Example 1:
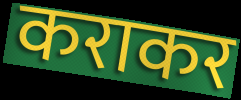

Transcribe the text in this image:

कराकर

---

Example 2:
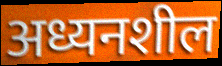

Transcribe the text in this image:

अध्यनशील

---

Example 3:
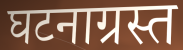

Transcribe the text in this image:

घटनाग्रस्त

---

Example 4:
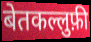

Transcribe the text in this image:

बेतकल्लुफ़ी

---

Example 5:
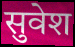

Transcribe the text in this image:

सुवेश